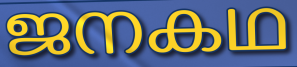
ജനകഥ